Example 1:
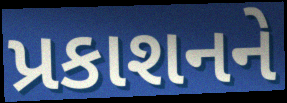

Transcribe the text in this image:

પ્રકાશનને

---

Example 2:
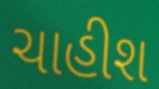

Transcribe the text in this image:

ચાહીશ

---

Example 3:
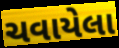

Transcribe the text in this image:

ચવાયેલા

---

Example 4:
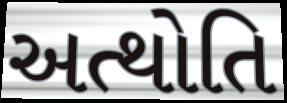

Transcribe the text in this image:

અત્થોતિ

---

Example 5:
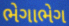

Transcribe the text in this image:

ભેગાભેગ